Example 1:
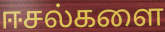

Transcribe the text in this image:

ஈசல்களை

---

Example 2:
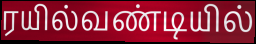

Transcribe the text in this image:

ரயில்வண்டியில்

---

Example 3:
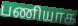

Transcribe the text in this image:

பணியாக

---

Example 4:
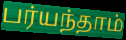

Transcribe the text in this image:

பர்யந்தாம்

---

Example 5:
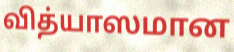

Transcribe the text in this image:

வித்யாஸமான